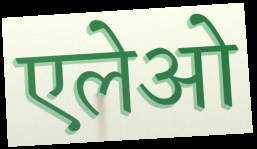
एलेओ